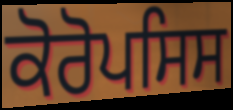
ਕੋਰੋਪਸਿਸ